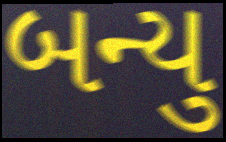
બન્યુ